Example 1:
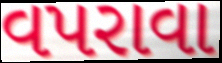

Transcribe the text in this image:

વપરાવા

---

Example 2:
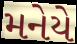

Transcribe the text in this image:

મનેયે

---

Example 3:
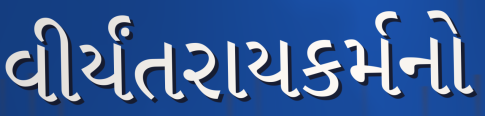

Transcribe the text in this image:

વીર્યંતરાયકર્મનો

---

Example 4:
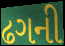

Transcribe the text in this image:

ઢગની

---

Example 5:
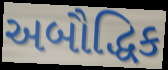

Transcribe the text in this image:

અબૌદ્ધિક